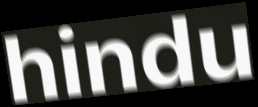
hindu